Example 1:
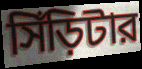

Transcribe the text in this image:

সিঁড়িটার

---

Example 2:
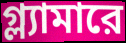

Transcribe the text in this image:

গ্ল্যামারে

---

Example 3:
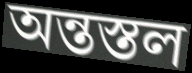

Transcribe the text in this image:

অন্তস্তল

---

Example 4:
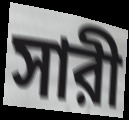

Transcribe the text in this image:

সারী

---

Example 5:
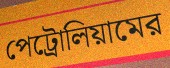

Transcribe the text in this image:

পেট্রোলিয়ামের